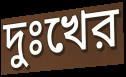
দুঃখের